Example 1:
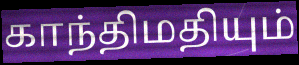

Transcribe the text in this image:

காந்திமதியும்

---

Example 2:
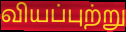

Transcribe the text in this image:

வியப்புற்று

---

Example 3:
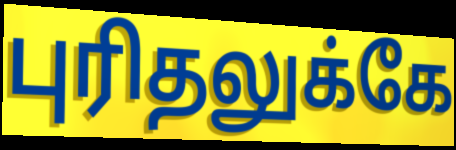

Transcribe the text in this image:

புரிதலுக்கே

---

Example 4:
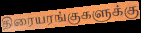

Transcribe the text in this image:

திரையரங்குகளுக்கு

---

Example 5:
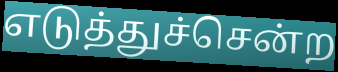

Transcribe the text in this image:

எடுத்துச்சென்ற